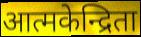
आत्मकेन्द्रिता